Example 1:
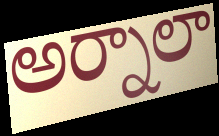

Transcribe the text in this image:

అర్నాలా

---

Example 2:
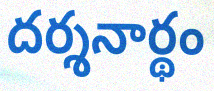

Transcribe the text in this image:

దర్శనార్థం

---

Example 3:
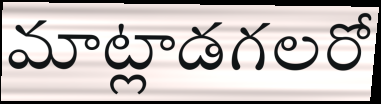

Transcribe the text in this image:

మాట్లాడగలరో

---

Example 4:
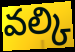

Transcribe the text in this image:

వల్కి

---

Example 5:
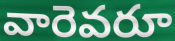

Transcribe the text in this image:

వారెవరూ